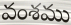
వంశము